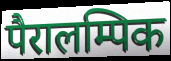
पैरालम्पिक